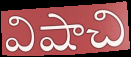
విషాచి